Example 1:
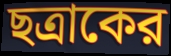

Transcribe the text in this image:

ছত্রাকের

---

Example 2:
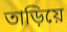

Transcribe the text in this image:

তাড়িয়ে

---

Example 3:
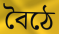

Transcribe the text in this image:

বৈঠে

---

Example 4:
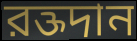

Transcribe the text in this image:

রক্তদান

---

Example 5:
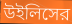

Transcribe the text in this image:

উইলিসের